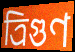
ত্রিগুণ